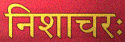
निशाचरः